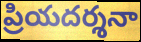
ప్రియదర్శనా